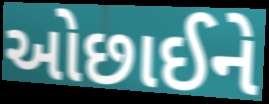
ઓછાઈને